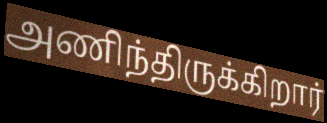
அணிந்திருக்கிறார்